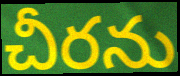
చీరను